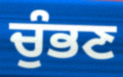
ਚੁੰਭਣ